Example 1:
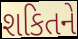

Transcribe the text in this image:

શકિતને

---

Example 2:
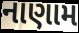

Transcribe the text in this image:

નાણામ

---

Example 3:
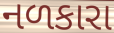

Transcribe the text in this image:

નળકારા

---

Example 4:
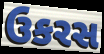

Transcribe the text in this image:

ઉકરસ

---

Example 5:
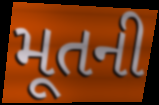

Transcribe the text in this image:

મૂતની